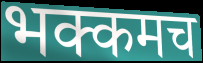
भक्कमच